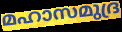
മഹാസമുദ്ര